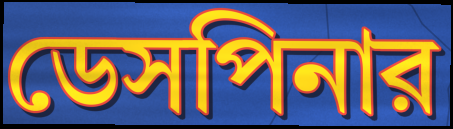
ডেসপিনার